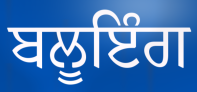
ਬਲੂਇੰਗ